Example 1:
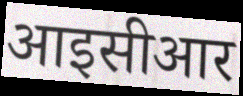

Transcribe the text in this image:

आइसीआर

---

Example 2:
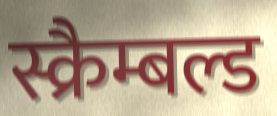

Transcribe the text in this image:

स्क्रैम्बल्ड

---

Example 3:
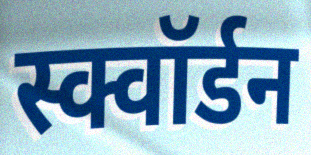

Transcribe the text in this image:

स्क्वॉर्डन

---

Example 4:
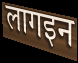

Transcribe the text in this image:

लागइन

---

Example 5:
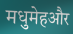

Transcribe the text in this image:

मधुमेहऔर